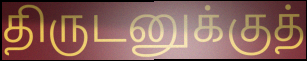
திருடனுக்குத்